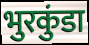
भुरकुंडा